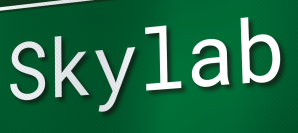
Skylab